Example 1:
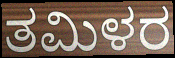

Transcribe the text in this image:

ತಮಿಳರ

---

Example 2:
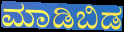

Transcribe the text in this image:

ಮಾಡಿಬಿಡ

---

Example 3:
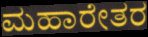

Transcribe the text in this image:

ಮಹಾರೇತರ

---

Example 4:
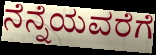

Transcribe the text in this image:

ನೆನ್ನೆಯವರೆಗೆ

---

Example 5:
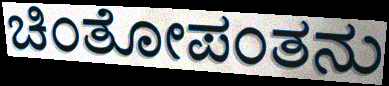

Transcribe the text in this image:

ಚಿಂತೋಪಂತನು